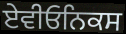
ਏਵੀਓਨਿਕਸ